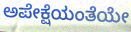
ಅಪೇಕ್ಷೆಯಂತೆಯೇ